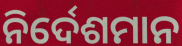
ନିର୍ଦେଶମାନ